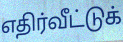
எதிர்வீட்டுக்